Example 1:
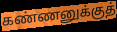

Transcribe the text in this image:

கண்ணனுக்குத்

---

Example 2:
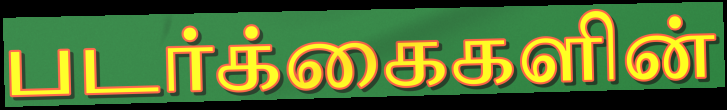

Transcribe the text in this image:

படர்க்கைகளின்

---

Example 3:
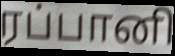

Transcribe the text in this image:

ரப்பானி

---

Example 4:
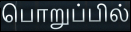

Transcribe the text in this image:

பொறுப்பில்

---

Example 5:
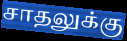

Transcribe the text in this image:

சாதலுக்கு